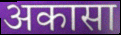
अकासा